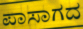
ಪಾಸಾಗದ